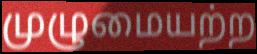
முழுமையற்ற